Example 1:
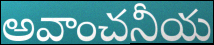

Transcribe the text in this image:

అవాంచనీయ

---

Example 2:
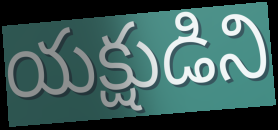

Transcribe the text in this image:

యక్షుడిని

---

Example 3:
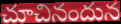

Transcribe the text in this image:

చూచినందున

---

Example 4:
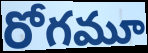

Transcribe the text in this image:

రోగమూ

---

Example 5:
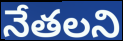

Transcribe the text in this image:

నేతలని